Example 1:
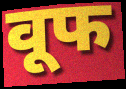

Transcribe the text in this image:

वूफ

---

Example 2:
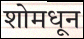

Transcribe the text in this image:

शोमधून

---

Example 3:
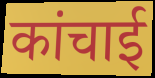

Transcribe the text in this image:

कांचाई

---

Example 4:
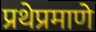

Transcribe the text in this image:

प्रथेप्रमाणे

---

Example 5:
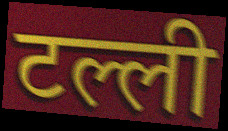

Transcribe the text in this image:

टल्ली